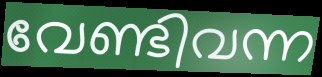
വേണ്ടിവന്ന